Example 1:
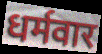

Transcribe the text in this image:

धर्मवार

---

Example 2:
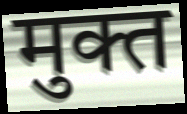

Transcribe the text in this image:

मुक्त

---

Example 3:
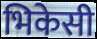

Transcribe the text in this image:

भिकेसी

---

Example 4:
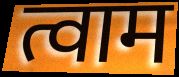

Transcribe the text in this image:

त्वाम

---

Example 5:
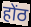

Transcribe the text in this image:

होंठ